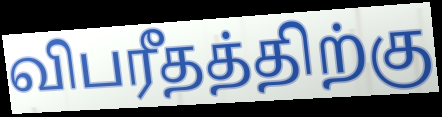
விபரீதத்திற்கு